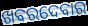
ଖବରଦେବାର